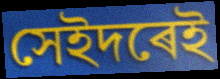
সেইদৰেই